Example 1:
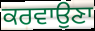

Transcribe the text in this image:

ਕਰਵਾਉਣਾ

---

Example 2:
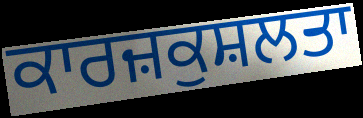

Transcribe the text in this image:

ਕਾਰਜ਼ਕੁਸ਼ਲਤਾ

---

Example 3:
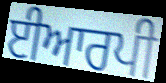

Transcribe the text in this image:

ਈਆਰਪੀ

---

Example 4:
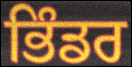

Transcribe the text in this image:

ਭਿੰਡਰ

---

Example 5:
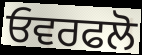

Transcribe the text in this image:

ਓਵਰਫਲੋ